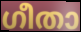
ഗീതാ